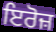
ਇਰੋਜ਼